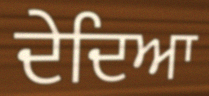
ਦੇਦਿਆ